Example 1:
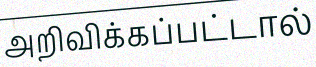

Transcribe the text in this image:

அறிவிக்கப்பட்டால்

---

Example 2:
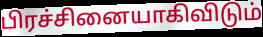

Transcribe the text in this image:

பிரச்சினையாகிவிடும்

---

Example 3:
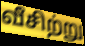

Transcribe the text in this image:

வீசிற்று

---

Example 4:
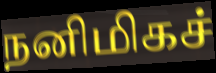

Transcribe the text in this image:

நனிமிகச்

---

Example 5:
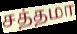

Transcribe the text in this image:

சத்தமா